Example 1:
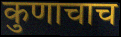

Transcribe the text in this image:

कुणाचाच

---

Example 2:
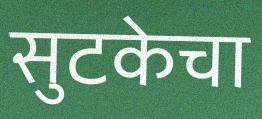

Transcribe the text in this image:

सुटकेचा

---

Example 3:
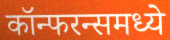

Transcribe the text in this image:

कॉन्फरन्समध्ये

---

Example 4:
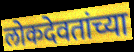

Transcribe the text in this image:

लोकदेवतांच्या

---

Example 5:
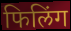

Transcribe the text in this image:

फिलिंग